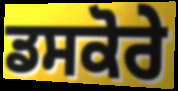
ਡਸਕੋਰੇ